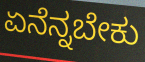
ಏನೆನ್ನಬೇಕು